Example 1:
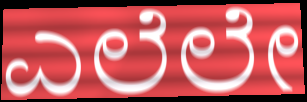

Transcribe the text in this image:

ಎಲೆಲೇ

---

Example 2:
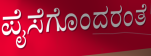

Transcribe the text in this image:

ಪೈಸೆಗೊಂದರಂತೆ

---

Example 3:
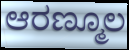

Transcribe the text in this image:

ಆರಣ್ಮೂಲ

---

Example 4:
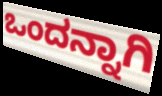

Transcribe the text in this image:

ಒಂದನ್ನಾಗಿ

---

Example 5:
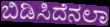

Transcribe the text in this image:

ಬಿಡಿಸಿದೆನಲಾ